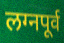
लग्नपूर्व